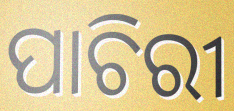
ପାଚିରୀ